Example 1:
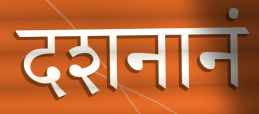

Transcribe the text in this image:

दशनानं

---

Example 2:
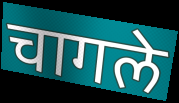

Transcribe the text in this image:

चागले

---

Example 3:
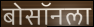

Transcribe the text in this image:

बोसॉनला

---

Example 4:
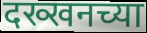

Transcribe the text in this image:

दख्खनच्या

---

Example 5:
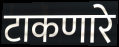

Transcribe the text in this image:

टाकणारे